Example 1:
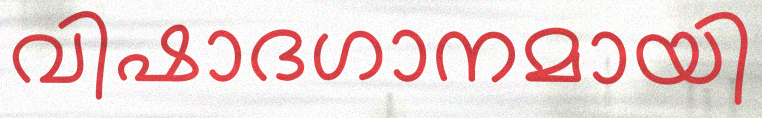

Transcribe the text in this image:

വിഷാദഗാനമായി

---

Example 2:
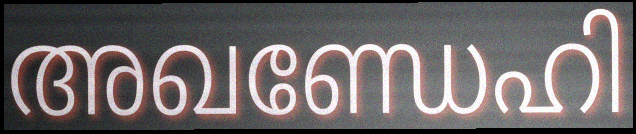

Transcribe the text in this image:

അഖണ്ഡേഹി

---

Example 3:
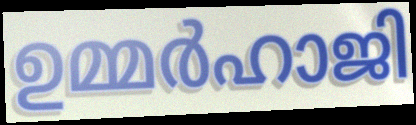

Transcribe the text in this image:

ഉമ്മർഹാജി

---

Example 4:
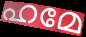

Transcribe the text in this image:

ഹമേ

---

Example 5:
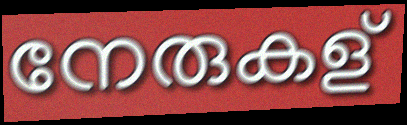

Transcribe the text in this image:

നേരുകള്